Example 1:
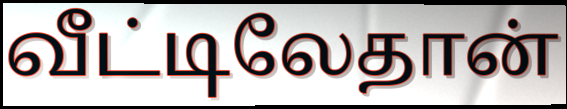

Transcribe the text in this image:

வீட்டிலேதான்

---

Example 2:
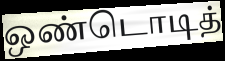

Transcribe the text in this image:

ஒண்டொடித்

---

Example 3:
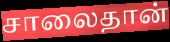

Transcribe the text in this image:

சாலைதான்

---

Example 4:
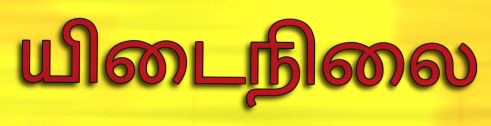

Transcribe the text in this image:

யிடைநிலை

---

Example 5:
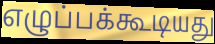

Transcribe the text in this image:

எழுப்பக்கூடியது